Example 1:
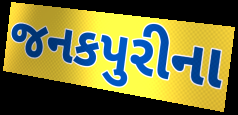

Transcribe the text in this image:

જનકપુરીના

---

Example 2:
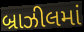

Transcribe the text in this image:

બ્રાઝીલમાં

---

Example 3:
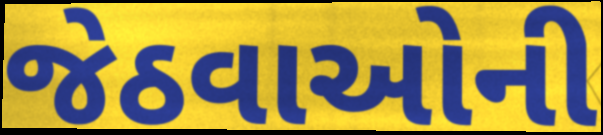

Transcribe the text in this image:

જેઠવાઓની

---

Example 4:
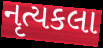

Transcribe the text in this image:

નૃત્યકલા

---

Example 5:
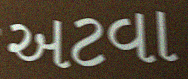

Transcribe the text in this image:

અટવા